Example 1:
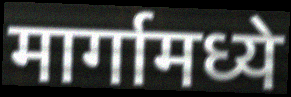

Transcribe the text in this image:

मार्गामध्ये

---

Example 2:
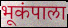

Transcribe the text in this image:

भूकंपाला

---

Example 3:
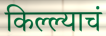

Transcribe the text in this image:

किल्ल्याचं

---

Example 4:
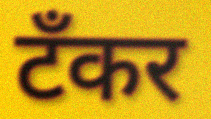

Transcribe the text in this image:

टँकर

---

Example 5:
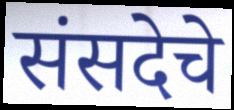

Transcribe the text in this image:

संसदेचे